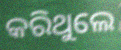
କରିଥୁଲେ